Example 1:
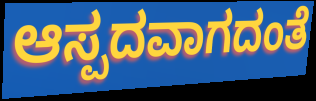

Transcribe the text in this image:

ಆಸ್ಪದವಾಗದಂತೆ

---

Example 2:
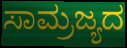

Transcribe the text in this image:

ಸಾಮ್ರಜ್ಯದ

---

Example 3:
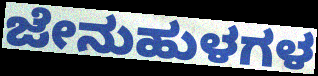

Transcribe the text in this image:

ಜೇನುಹುಳಗಳ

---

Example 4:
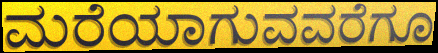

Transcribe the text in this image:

ಮರೆಯಾಗುವವರೆಗೂ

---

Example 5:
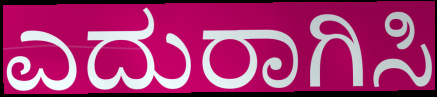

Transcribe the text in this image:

ಎದುರಾಗಿಸಿ